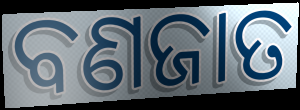
ବଣଜାତ